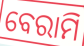
ବେରାମି